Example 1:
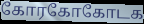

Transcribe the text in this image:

கோரகோகோடக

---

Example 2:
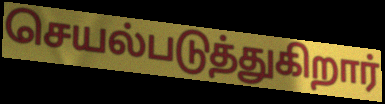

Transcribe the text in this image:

செயல்படுத்துகிறார்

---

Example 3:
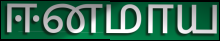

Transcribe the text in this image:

ஈனமாய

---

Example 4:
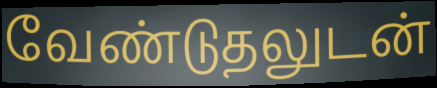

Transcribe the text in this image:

வேண்டுதலுடன்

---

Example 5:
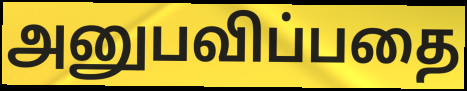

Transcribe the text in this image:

அனுபவிப்பதை